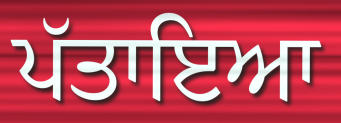
ਪੱਤਾਇਆ